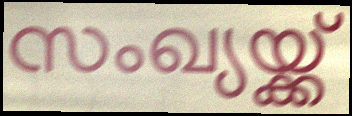
സംഖ്യയ്ക്ക്